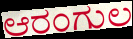
ಆರಂಗುಲ